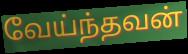
வேய்ந்தவன்